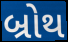
બ્રોથ